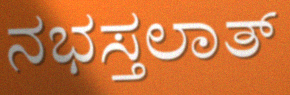
ನಭಸ್ತಲಾತ್